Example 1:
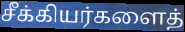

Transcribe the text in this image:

சீக்கியர்களைத்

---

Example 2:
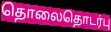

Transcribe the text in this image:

தொலைதொடர்பு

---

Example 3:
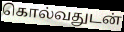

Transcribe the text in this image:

கொல்வதுடன்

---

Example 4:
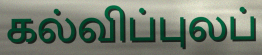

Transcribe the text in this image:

கல்விப்புலப்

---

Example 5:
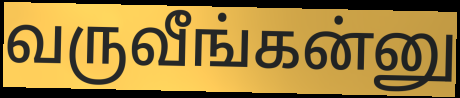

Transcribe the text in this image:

வருவீங்கன்னு